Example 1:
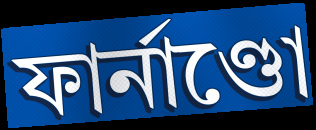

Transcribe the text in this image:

ফাৰ্নাণ্ডো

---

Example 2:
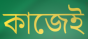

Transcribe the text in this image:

কাজেই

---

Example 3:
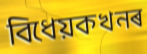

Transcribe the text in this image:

বিধেয়কখনৰ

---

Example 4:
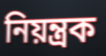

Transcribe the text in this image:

নিয়ন্ত্ৰক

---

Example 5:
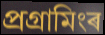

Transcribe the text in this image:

প্ৰগ্ৰামিংৰ